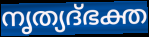
നൃത്യദ്ഭക്ത